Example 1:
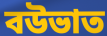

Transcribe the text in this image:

বউভাত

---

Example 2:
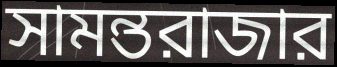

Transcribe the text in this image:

সামন্তরাজার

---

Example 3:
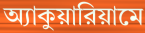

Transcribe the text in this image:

অ্যাকুয়ারিয়ামে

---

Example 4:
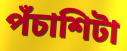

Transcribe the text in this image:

পঁচাশিটা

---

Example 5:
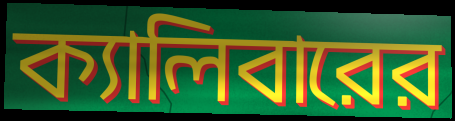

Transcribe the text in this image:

ক্যালিবারের